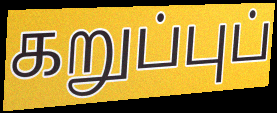
கறுப்புப்